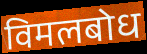
विमलबोध